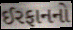
ઈરફાનનો